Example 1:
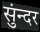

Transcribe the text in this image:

सुंन्दर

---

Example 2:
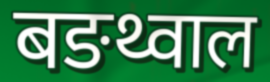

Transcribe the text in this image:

बङथ्वाल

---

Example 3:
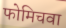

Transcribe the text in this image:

फोमिचवा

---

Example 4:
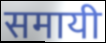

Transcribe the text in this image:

समायी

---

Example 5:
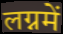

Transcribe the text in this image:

लग्नमें